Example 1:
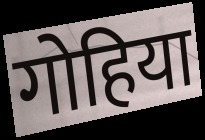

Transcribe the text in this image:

गोहिया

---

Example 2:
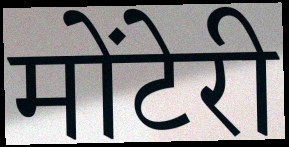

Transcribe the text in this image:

मोंटेरी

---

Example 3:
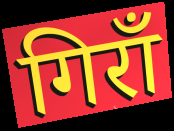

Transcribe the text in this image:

गिराँ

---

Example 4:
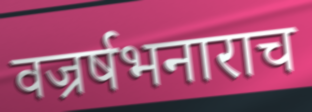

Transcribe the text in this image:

वज्रर्षभनाराच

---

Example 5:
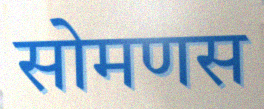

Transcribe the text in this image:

सोमणस